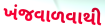
ખંજવાળવાથી